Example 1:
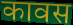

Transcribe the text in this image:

कावस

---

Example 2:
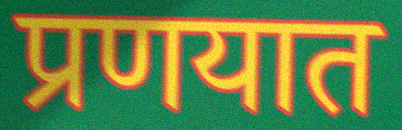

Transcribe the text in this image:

प्रणयात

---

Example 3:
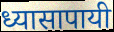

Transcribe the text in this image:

ध्यासापायी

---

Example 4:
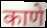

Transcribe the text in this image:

काणे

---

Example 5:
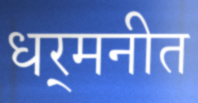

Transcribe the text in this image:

धर्मनीत